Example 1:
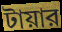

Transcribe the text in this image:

টায়ার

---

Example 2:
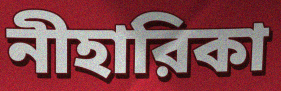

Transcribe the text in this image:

নীহারিকা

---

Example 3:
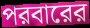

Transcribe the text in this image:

পরবারের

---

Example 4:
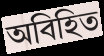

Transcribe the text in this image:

অবিহিত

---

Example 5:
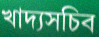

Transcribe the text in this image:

খাদ্যসচিব